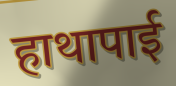
हाथापाई